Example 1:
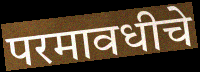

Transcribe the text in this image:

परमावधीचे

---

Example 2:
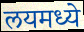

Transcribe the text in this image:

लयमध्ये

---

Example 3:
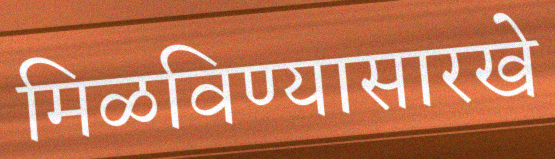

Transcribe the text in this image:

मिळविण्यासारखे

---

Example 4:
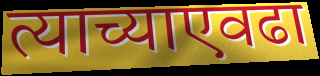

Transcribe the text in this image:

त्याच्याएवढा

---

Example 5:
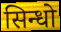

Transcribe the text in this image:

सिन्धो